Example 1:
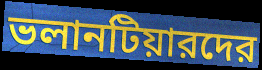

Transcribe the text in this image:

ভলানটিয়ারদের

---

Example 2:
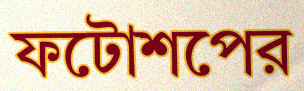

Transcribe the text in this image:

ফটোশপের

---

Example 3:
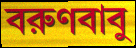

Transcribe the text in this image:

বরুণবাবু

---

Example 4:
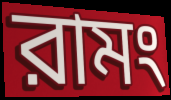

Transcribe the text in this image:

রামং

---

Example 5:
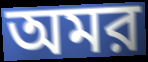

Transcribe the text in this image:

অমর